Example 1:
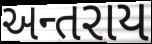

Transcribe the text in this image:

અન્તરાય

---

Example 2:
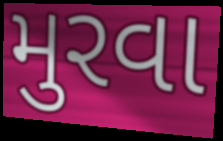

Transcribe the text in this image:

મુરવા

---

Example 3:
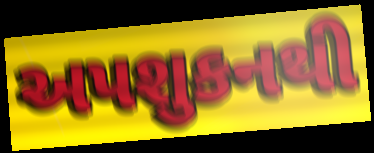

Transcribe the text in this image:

અપશુકનથી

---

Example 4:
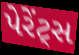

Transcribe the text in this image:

પેરેંટ્સ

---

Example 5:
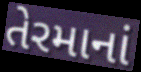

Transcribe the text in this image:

તેરમાનાં